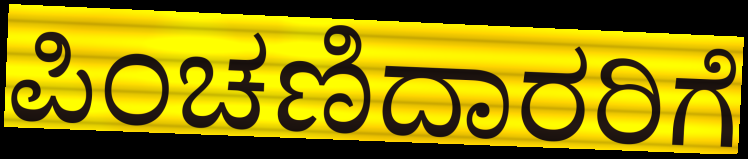
ಪಿಂಚಣಿದಾರರಿಗೆ